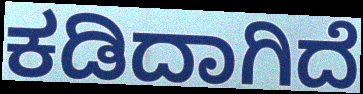
ಕಡಿದಾಗಿದೆ